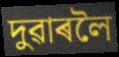
দুৱাৰলৈ